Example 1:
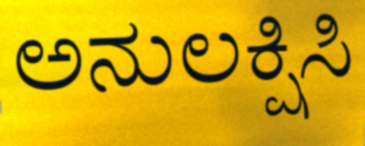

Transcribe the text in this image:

ಅನುಲಕ್ಷಿಸಿ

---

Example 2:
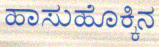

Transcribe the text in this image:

ಹಾಸುಹೊಕ್ಕಿನ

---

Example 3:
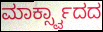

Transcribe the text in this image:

ಮಾರ್ಕ್ಸ್ವಾದದ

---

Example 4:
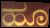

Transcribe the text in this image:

ಹೂ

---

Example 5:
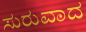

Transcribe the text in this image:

ಸುರುವಾದ